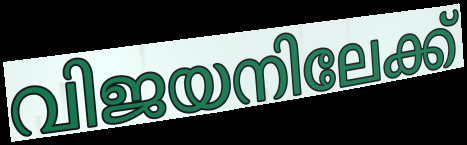
വിജയനിലേക്ക്